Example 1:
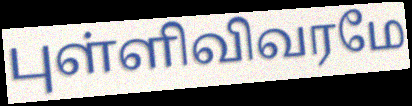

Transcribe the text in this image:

புள்ளிவிவரமே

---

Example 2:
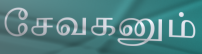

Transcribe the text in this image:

சேவகனும்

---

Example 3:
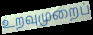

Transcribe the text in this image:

உறவுமுறைப்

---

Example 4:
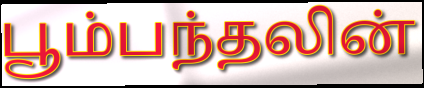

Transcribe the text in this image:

பூம்பந்தலின்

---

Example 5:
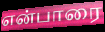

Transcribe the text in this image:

என்பாரை